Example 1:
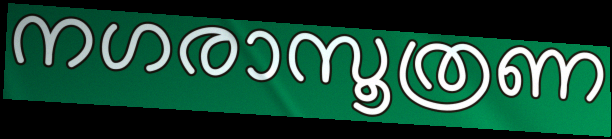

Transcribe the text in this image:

നഗരാസൂത്രണ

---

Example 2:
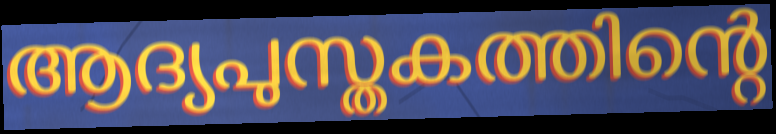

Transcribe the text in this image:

ആദ്യപുസ്തകത്തിന്റെ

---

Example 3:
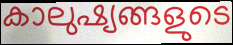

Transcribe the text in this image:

കാലുഷ്യങ്ങളുടെ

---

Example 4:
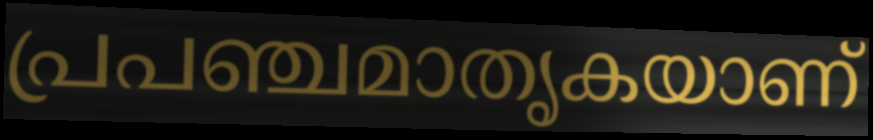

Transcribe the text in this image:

പ്രപഞ്ചമാതൃകയാണ്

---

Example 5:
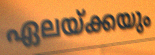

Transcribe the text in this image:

ഏലയ്ക്കയും